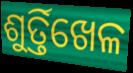
ଶୁର୍ତ୍ତିଖେଳ